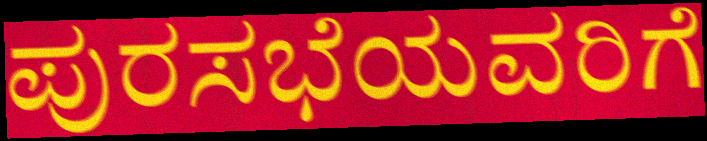
ಪುರಸಭೆಯವರಿಗೆ